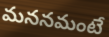
మననమంటే